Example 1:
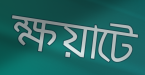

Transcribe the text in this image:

ক্ষয়াটে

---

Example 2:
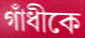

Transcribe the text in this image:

গাঁধীকে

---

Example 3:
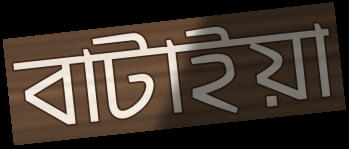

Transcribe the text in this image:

বাটাইয়া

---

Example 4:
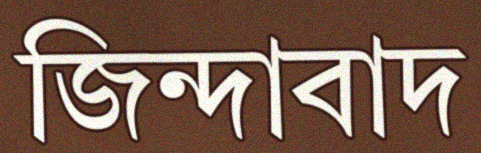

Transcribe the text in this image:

জিন্দাবাদ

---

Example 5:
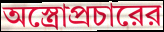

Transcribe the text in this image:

অস্ত্রোপ্রচারের